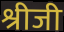
श्रीजी